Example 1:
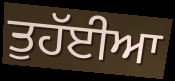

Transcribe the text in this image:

ਤੁਹੱਈਆ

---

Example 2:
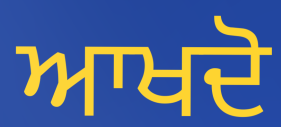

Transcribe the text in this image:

ਆਖਦੋ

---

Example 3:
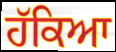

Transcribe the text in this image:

ਹੱਕਿਆ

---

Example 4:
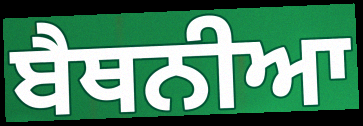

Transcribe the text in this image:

ਬੈਥਨੀਆ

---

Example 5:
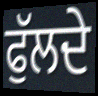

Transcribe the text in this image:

ਫੁੱਲਦੇ